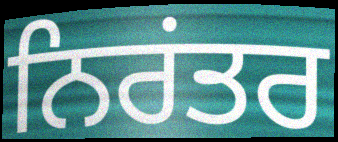
ਨਿਰਂਤਰ